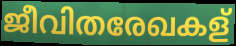
ജീവിതരേഖകള്